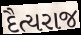
દૈત્યરાજ